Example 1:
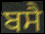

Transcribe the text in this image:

ਬਸੈ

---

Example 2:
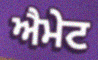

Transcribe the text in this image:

ਐਮੇਟ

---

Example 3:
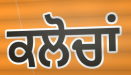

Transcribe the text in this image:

ਕਲੋਚਾਂ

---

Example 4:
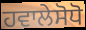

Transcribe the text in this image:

ਹਵਾਲੇਸੋਧੋ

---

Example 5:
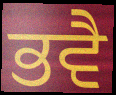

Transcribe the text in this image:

ਭਵੈ